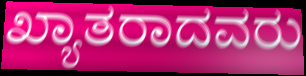
ಖ್ಯಾತರಾದವರು